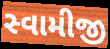
સ્વામીજી